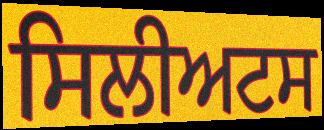
ਸਿਲੀਅਟਸ